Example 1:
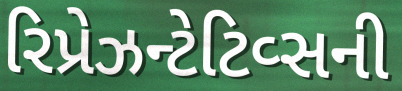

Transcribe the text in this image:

રિપ્રેઝન્ટેટિવ્સની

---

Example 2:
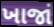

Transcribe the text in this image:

ખાજાં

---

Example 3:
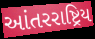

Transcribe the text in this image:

આંતરરાષ્ટ્રિય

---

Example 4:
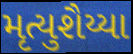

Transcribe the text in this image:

મૃત્યુશૈય્યા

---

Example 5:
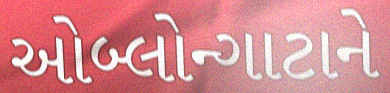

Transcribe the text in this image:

ઓબ્લોન્ગાટાને